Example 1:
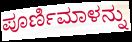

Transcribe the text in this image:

ಪೂರ್ಣಿಮಾಳನ್ನು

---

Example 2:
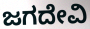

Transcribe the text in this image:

ಜಗದೇವಿ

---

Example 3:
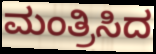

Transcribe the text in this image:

ಮಂತ್ರಿಸಿದ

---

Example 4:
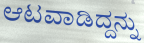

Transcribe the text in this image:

ಆಟವಾಡಿದ್ದನ್ನು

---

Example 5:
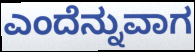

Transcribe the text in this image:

ಎಂದೆನ್ನುವಾಗ